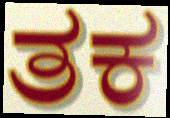
ತಕ